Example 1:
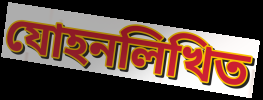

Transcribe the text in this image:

যোহনলিখিত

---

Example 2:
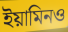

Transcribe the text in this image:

ইয়ামিনও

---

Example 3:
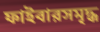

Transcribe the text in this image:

ফাইবারসমৃদ্ধ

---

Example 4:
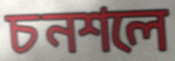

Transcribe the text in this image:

চনশলে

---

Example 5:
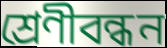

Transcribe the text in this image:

শ্রেণীবন্ধন